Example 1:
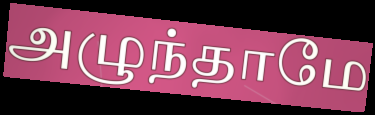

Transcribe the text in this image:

அழுந்தாமே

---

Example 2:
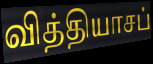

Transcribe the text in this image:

வித்தியாசப்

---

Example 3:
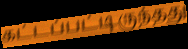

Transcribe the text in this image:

கட்டப்பட்டிருந்தது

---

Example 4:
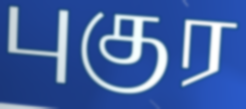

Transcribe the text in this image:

புகுர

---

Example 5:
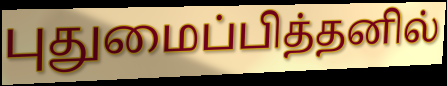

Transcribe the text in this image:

புதுமைப்பித்தனில்